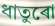
ধাতুৰো